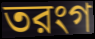
তরংগ